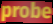
probe